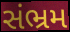
સંભ્રમ